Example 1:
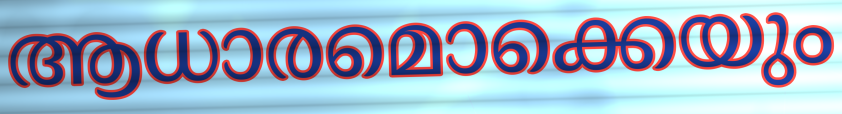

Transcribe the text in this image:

ആധാരമൊക്കെയും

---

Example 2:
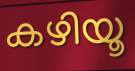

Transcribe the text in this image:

കഴിയൂ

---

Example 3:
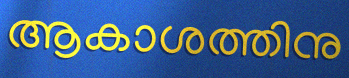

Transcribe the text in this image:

ആകാശത്തിനു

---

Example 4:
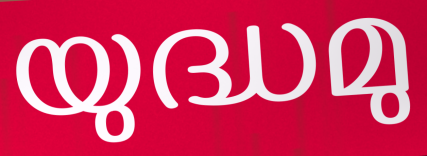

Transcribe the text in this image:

യുദ്ധമു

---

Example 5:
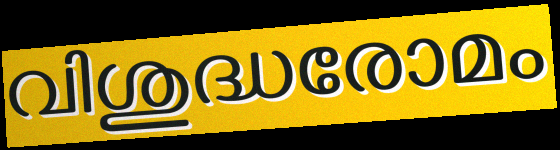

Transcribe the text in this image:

വിശുദ്ധരോമം